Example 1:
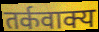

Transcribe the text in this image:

तर्कवाक्य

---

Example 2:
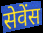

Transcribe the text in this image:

सेवेंस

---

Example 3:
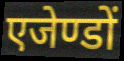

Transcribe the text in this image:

एजेण्डों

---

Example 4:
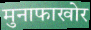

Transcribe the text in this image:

मुनाफाखोर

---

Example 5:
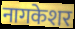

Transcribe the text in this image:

नागकेशर